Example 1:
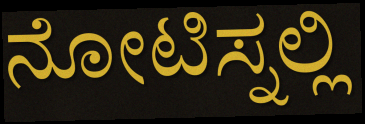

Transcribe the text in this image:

ನೋಟಿಸ್ನಲ್ಲಿ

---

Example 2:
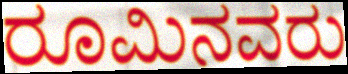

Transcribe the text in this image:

ರೂಮಿನವರು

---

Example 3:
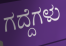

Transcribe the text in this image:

ಗದ್ದೆಗಳು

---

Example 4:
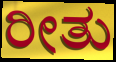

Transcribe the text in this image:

ರೀತು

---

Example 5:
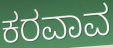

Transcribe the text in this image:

ಕರವಾವ